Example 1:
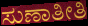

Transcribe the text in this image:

ಸುಣಾತೀತಿ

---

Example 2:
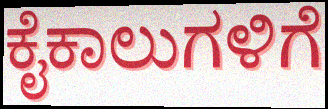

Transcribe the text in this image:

ಕೈಕಾಲುಗಳಿಗೆ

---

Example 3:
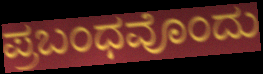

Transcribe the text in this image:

ಪ್ರಬಂಧವೊಂದು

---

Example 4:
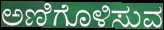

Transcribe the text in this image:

ಅಣಿಗೊಳಿಸುವ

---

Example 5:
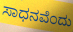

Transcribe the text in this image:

ಸಾಧನವೆಂದು